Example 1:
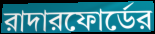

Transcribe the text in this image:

রাদারফোর্ডের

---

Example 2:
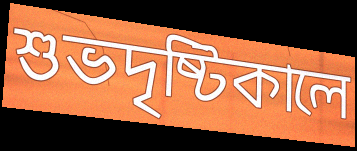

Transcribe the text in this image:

শুভদৃষ্টিকালে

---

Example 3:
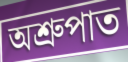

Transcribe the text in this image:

অশ্রুপাত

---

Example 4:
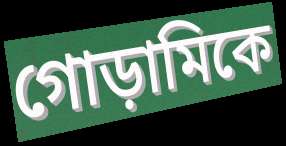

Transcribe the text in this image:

গোড়ামিকে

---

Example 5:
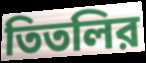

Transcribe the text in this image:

তিতলির